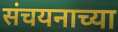
संचयनाच्या